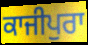
ਕਾਜੀਪੁਰਾ